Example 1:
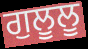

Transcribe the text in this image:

ਗੁਲੂਲੂ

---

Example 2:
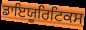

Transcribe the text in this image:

ਡਾਇਯੂਰਿਟਿਕਸ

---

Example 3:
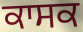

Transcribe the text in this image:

ਕਾਸਕ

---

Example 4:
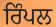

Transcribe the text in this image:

ਰਿੰਪਲ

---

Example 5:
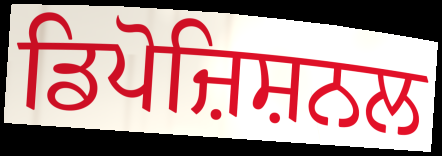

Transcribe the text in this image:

ਡਿਪੋਜ਼ਿਸ਼ਨਲ